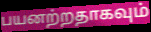
பயனற்றதாகவும்